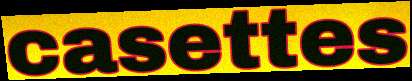
casettes